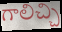
గాలిచ్చి